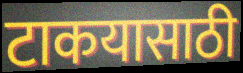
टाकयासाठी